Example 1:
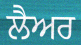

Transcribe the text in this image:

ਲੈਅਰ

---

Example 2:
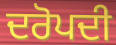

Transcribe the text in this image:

ਦਰੋਪਦੀ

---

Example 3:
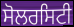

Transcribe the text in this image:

ਸੋਲਰਸਿਟੀ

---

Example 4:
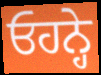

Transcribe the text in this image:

ਓਹਨ੍ਹੇ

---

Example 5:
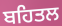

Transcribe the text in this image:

ਬਹਿਤਲ